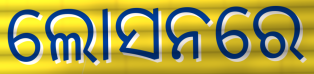
ଲୋସନରେ